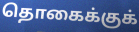
தொகைக்குக்